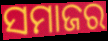
ସମାଜର